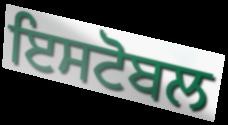
ਇਸਟੋਬਲ